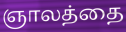
ஞாலத்தை